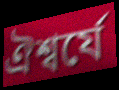
ঐশ্বর্যে